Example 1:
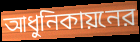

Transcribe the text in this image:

আধুনিকায়নের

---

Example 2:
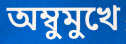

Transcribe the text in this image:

অম্বুমুখে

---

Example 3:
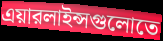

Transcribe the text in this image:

এয়ারলাইন্সগুলোতে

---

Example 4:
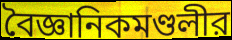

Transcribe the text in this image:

বৈজ্ঞানিকমণ্ডলীর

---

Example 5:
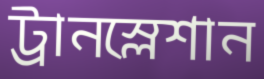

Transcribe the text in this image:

ট্রানস্লেশান